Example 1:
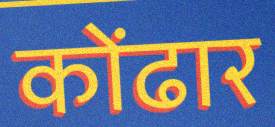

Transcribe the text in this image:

कोंढार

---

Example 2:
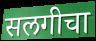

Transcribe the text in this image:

सलगीचा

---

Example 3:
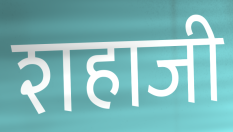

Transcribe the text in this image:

शहाजी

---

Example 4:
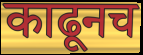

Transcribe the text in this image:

काढूनच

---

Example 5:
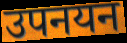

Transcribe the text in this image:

उपनयन